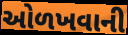
ઓળખવાની